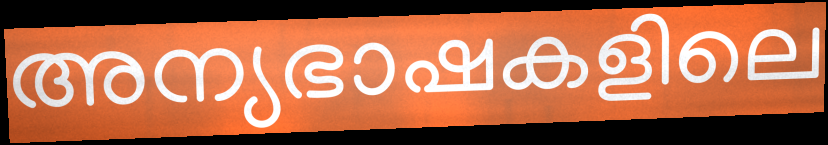
അന്യഭാഷകളിലെ